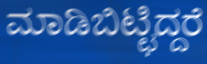
ಮಾಡಿಬಿಟ್ಟಿದ್ದರೆ